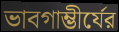
ভাবগাম্ভীর্যের